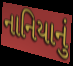
નાનિયાનું